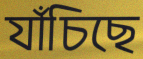
যাঁচিছে